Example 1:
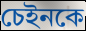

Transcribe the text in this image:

চেইনকে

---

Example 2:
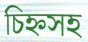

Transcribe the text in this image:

চিহ্নসহ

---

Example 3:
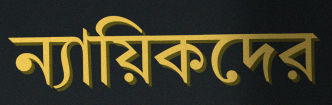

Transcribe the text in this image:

ন্যায়িকদের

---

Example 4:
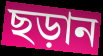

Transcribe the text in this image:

ছড়ান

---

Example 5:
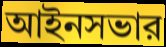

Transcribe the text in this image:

আইনসভার